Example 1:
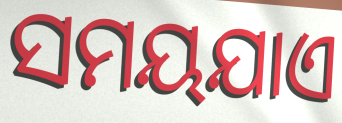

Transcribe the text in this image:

ସମୟଯାଏ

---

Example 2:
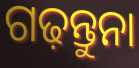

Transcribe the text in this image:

ଗଢ଼ନ୍ତୁନା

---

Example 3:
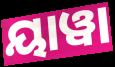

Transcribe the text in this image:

ୟାୱା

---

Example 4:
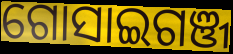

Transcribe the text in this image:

ଗୋସାଇଗଞ୍ଜ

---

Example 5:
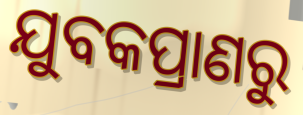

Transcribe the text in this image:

ଯୁବକପ୍ରାଣରୁ